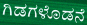
ಗಿಡಗಳೊಡನೆ